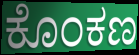
ಕೊಂಕಣ